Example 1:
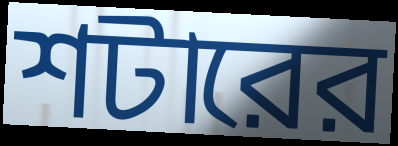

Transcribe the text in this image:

শটারের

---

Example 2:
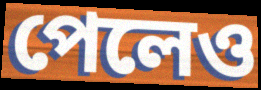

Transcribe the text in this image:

পেলেও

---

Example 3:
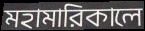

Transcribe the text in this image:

মহামারিকালে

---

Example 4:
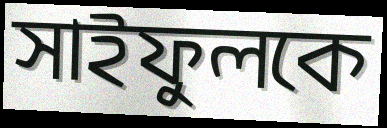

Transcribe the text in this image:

সাইফুলকে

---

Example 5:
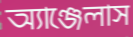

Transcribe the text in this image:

অ্যাঞ্জেলাস